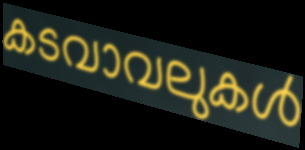
കടവാവലുകൾ